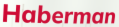
Haberman